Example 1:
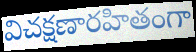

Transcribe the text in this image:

విచక్షణారహితంగా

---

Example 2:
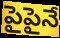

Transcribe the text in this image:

పైపైనే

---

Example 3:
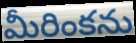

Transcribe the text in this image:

మీరింకను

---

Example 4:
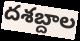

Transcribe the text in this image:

దశబ్దాల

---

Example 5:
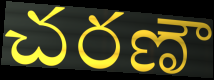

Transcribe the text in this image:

చరణౌ